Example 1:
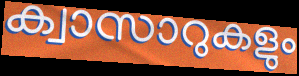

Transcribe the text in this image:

ക്വാസാറുകളും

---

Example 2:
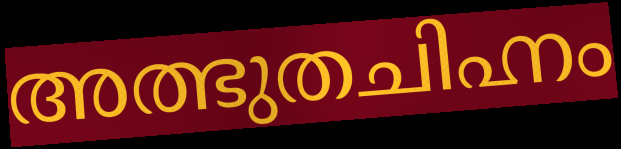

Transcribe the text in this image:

അത്ഭുതചിഹ്നം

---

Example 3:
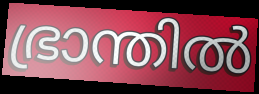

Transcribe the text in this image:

ഭ്രാന്തിൽ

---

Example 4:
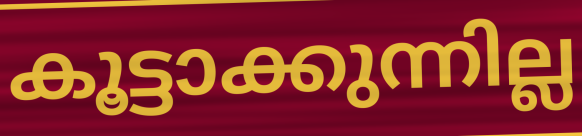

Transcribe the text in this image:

കൂട്ടാക്കുന്നില്ല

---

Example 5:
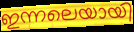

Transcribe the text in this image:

ഇന്നലെയായി